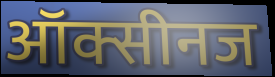
ऑक्सीनज